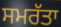
ਸਮਰੱਤਾ